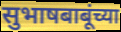
सुभाषबाबूंच्या